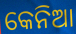
କେନିଆ